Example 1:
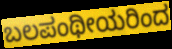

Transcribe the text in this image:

ಬಲಪಂಥೀಯರಿಂದ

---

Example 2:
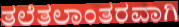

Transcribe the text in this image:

ತಲೆತಲಾಂತರವಾಗಿ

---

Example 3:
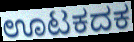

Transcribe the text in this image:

ಊಟಕದಕ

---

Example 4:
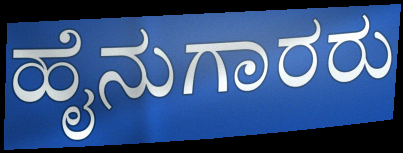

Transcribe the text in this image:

ಹೈನುಗಾರರು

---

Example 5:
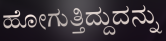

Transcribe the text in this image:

ಹೋಗುತ್ತಿದ್ದುದನ್ನು